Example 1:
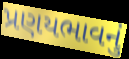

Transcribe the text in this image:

પ્રણયભાવનું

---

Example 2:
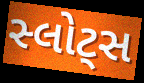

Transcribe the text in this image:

સ્લોટ્સ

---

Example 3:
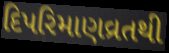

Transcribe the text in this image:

દિપરિમાણવ્રતથી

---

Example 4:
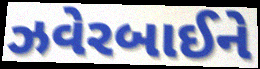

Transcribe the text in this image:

ઝવેરબાઈને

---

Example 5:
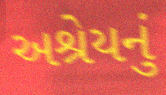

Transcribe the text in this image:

અશ્રેયનું